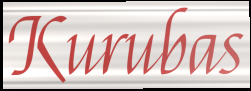
Kurubas